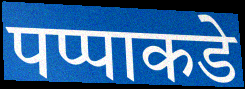
पप्पाकडे